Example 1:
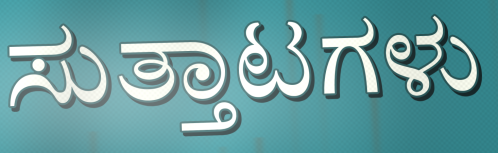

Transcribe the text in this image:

ಸುತ್ತಾಟಗಳು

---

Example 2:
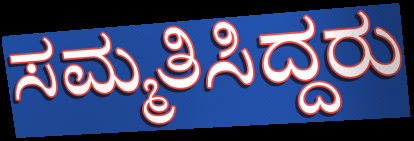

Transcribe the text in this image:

ಸಮ್ಮತಿಸಿದ್ದರು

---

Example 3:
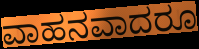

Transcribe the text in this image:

ವಾಹನವಾದರೂ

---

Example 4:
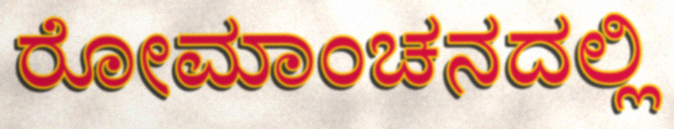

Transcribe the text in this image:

ರೋಮಾಂಚನದಲ್ಲಿ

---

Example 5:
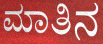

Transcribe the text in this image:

ಮಾತಿನ